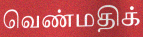
வெண்மதிக்